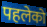
पहलेको